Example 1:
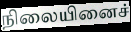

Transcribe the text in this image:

நிலையினைச்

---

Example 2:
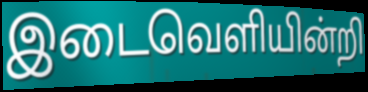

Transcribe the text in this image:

இடைவெளியின்றி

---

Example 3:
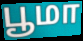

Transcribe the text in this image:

பூமா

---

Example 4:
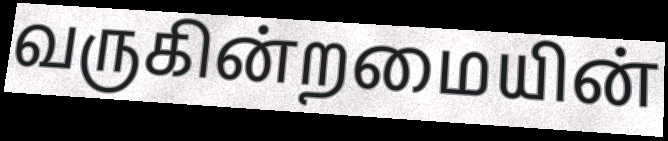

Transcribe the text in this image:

வருகின்றமையின்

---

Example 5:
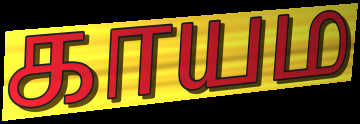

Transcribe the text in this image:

காயம